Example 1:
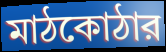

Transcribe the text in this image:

মাঠকোঠার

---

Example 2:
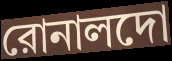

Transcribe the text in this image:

রোনালদো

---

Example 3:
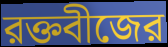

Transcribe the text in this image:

রক্তবীজের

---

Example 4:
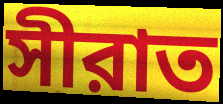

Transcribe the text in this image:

সীরাত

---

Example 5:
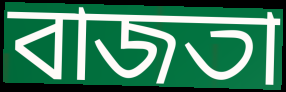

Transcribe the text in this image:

বাজতা